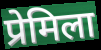
प्रेमिला